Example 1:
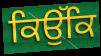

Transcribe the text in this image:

ਕਿਉੱਕਿ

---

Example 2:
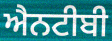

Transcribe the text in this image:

ਐਨਟੀਬੀ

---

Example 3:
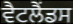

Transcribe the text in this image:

ਵੈਟਲੈਂਡਸ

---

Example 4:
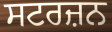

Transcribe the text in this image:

ਸਟਰਜ਼ਨ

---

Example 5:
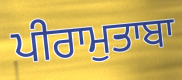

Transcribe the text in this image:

ਪੀਰਾਮੁਤਾਬਾ